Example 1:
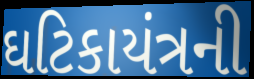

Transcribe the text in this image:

ઘટિકાયંત્રની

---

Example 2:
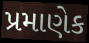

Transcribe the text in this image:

પ્રમાણેક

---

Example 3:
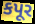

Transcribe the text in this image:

કપૂર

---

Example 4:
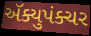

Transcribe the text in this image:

ઍક્યુપંક્ચર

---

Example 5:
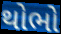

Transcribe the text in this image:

થોભો